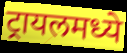
ट्रायलमध्ये